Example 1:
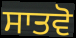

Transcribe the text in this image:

ਸਾਤਵੋ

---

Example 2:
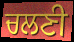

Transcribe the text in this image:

ਚਲਣੀ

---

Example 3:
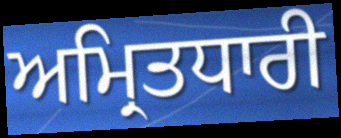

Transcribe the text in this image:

ਅਮ੍ਰਿਤਧਾਰੀ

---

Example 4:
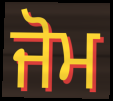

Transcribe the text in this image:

ਜੋਮ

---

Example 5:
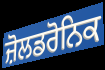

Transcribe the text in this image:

ਜ਼ੋਲਡਰੋਨਿਕ